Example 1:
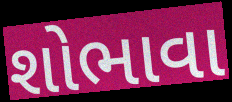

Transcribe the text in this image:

શોભાવા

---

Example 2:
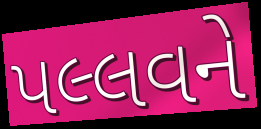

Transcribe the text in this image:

પલ્લવને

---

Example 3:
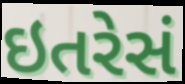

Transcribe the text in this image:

ઇતરેસં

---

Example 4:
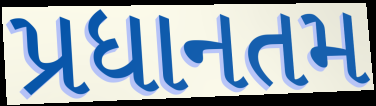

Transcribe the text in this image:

પ્રધાનતમ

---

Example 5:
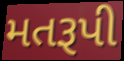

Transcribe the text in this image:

મતરૂપી